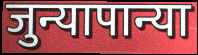
जुन्यापान्या